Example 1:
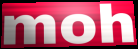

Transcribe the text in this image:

moh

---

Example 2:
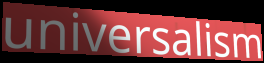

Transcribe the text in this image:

universalism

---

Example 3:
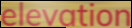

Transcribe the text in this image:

elevation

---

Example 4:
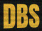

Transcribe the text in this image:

DBS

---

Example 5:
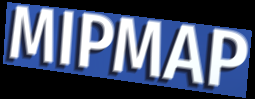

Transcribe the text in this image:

MIPMAP